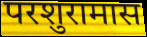
परशुरामास